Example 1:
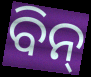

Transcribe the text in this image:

ବିନ୍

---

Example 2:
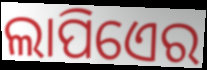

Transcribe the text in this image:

ଲାପିଏେର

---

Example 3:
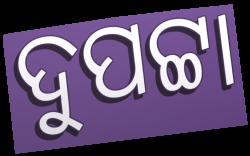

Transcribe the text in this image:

ଦୁପଟ୍ଟା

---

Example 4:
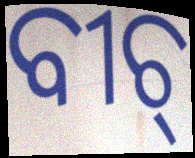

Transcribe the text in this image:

ବୀଚ୍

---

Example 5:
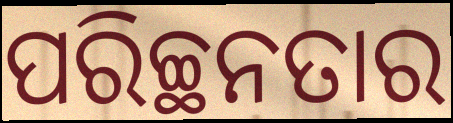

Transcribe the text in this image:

ପରିଚ୍ଛନତାର